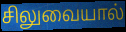
சிலுவையால்